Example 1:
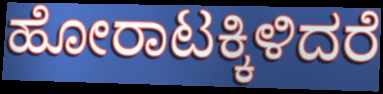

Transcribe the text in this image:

ಹೋರಾಟಕ್ಕಿಳಿದರೆ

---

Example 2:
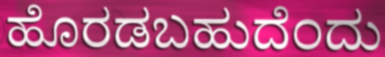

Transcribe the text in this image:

ಹೊರಡಬಹುದೆಂದು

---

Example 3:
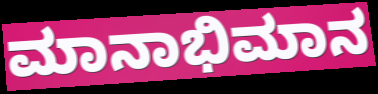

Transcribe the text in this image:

ಮಾನಾಭಿಮಾನ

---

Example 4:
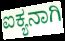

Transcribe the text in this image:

ಐಕ್ಯನಾಗಿ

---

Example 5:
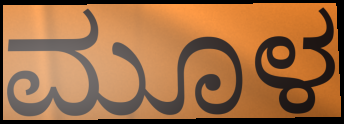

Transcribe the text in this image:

ಮೂಳ